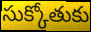
సుక్కోతుకు